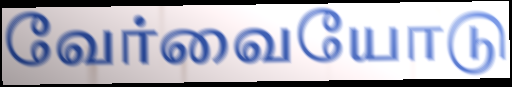
வேர்வையோடு